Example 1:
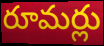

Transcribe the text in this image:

రూమర్లు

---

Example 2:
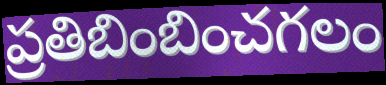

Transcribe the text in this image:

ప్రతిబింబించగలం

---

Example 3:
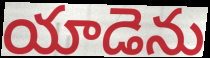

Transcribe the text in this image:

యాడెను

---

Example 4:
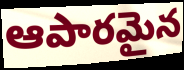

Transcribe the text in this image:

ఆపారమైన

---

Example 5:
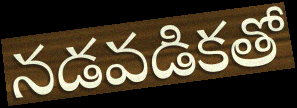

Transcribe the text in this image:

నడవడికతో